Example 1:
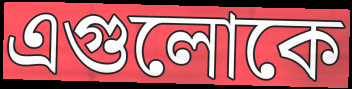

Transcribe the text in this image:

এগুলোকে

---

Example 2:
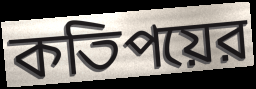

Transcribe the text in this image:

কতিপয়ের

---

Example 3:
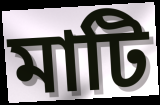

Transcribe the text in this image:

মাটি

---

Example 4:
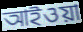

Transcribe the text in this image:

আইওয়া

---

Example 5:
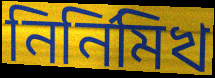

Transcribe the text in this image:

নির্নিমিখ